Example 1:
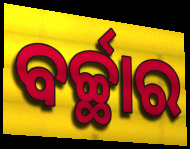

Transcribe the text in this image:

ବର୍ଚ୍ଛାର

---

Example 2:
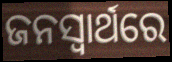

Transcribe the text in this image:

ଜନସ୍ୱାର୍ଥରେ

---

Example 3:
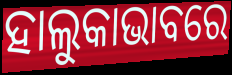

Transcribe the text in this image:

ହାଲୁକାଭାବରେ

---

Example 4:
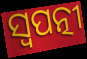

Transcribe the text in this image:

ସ୍ୱପତ୍ନୀ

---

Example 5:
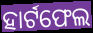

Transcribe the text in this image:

ହାର୍ଟଫେଲ